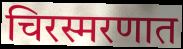
चिरस्मरणात